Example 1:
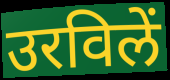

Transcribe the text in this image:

उरविलें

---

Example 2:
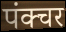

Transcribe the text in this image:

पंक्चर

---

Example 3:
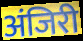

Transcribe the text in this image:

अंजिरी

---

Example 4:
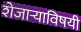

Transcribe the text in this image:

शेजाऱ्याविषयी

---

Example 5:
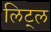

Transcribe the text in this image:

लिट्‌ल